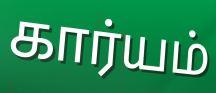
கார்யம்